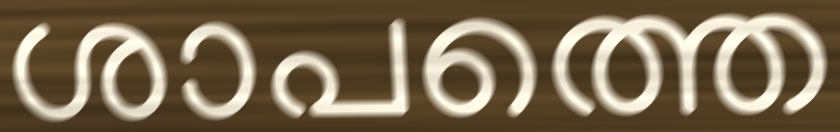
ശാപത്തെ